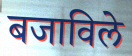
बजाविले